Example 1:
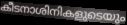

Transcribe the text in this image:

കീടനാശിനികളുടെയും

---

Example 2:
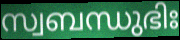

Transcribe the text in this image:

സ്വബന്ധുഭിഃ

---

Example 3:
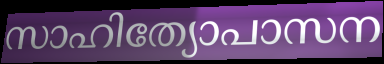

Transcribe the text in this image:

സാഹിത്യോപാസന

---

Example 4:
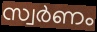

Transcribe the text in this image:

സ്വർണം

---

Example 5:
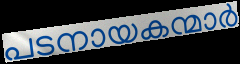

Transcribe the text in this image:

പടനായകന്മാർ